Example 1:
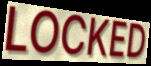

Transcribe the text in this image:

LOCKED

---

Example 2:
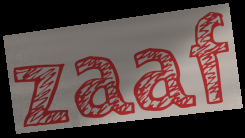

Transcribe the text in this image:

zaaf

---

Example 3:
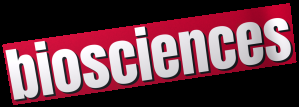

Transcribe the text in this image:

biosciences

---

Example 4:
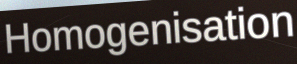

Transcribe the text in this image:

Homogenisation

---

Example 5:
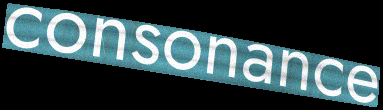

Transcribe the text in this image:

consonance